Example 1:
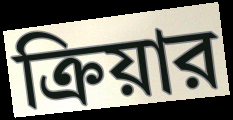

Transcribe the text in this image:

ক্রিয়ার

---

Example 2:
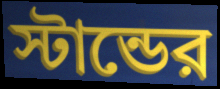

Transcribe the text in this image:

স্টান্ডের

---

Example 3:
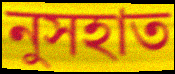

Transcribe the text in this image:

নুসহাত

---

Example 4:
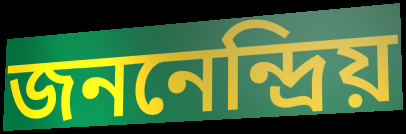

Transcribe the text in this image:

জননেন্দ্রিয়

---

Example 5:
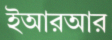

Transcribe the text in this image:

ইআরআর